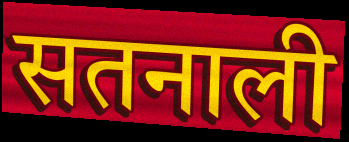
सतनाली